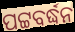
ପଟ୍ଟବର୍ଦ୍ଧନ